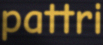
pattri